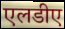
एलडीए